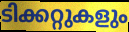
ടിക്കറ്റുകളും